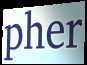
pher